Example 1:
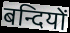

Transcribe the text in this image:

बन्दियों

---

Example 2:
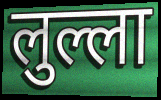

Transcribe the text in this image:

लुल्ला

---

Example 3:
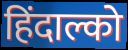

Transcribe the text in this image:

हिंदाल्को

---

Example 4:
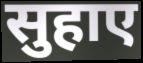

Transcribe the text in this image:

सुहाए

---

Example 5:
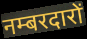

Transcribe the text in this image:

नम्बरदारों